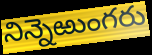
నిన్నెఱుంగరు